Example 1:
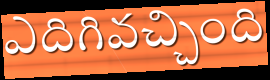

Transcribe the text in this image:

ఎదిగివచ్చింది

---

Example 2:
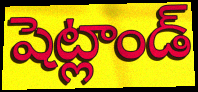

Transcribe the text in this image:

షెట్లాండ్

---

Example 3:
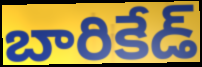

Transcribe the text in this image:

బారికేడ్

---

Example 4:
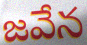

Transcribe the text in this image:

జవేన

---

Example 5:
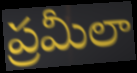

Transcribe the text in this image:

ప్రమీలా